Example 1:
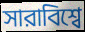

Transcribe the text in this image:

সারাবিশ্বে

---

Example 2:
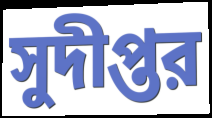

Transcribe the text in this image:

সুদীপ্তর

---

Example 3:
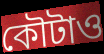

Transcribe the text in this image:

কৌটাও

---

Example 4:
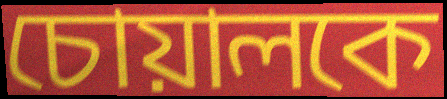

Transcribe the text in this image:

চোয়ালকে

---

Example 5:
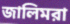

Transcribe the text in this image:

জালিমরা